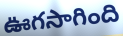
ఊగసాగింది